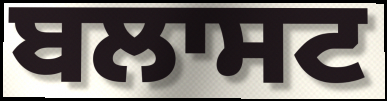
ਬਲਾਸਟ